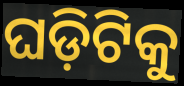
ଘଡ଼ିଟିକୁ